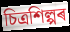
চিত্ৰশিল্পৰ